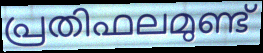
പ്രതിഫലമുണ്ട്